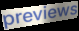
previews